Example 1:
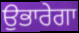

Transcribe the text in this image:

ਉਭਾਰੇਗਾ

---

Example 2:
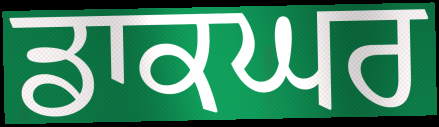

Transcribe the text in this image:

ਡਾਕਘਰ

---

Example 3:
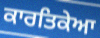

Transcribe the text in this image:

ਕਾਰਤਿਕੇਆ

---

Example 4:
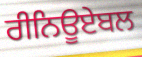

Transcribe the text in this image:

ਰੀਨਿਊਏਬਲ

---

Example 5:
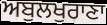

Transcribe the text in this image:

ਅਬੁਲਖੁਰਾਣਾ